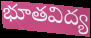
భూతవిద్య